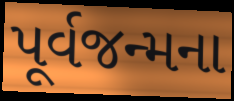
પૂર્વજન્મના